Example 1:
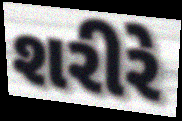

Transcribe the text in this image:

શરીરે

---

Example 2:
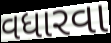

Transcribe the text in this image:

વધારવા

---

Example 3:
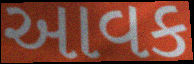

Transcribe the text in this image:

આવક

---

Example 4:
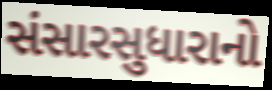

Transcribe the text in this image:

સંસારસુધારાનો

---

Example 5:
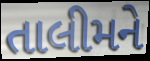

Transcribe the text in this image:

તાલીમને